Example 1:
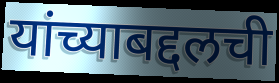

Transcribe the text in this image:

यांच्याबद्दलची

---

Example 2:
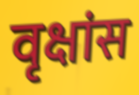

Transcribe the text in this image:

वृक्षांस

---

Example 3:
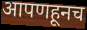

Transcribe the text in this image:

आपणहूनच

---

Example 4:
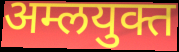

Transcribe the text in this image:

अम्लयुक्त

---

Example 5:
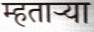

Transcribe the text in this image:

म्हताऱ्या